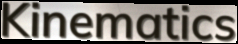
Kinematics